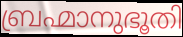
ബ്രഹ്മാനുഭൂതി